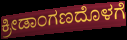
ಕ್ರೀಡಾಂಗಣದೊಳಗೆ